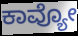
ಕಾವ್ಯೋ